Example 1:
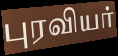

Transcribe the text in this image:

புரவியர்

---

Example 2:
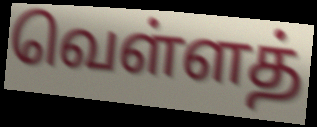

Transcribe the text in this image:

வெள்ளத்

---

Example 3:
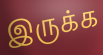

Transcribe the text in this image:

இருக்க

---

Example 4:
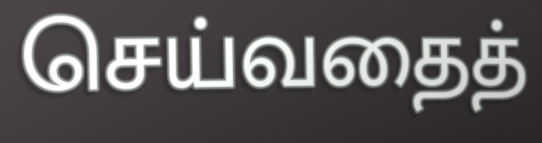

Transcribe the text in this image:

செய்வதைத்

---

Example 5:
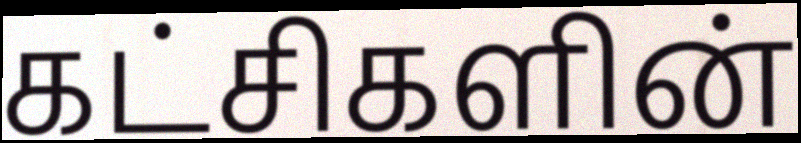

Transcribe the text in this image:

கட்சிகளின்